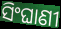
ସିଂଘାଣୀ